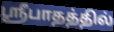
ஸ்ரீபாதத்தில்